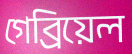
গেব্ৰিয়েল